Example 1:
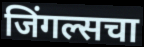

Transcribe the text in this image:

जिंगल्सचा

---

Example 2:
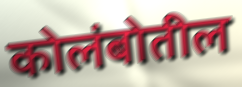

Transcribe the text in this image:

कोलंबोतील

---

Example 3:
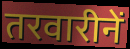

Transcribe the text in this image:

तरवारीनें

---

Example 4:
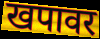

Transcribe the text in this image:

खपावर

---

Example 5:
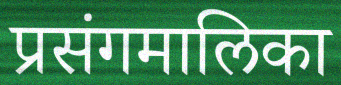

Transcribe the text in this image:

प्रसंगमालिका